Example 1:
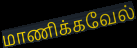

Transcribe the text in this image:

மாணிக்கவேல்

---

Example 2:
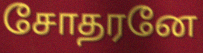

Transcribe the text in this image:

சோதரனே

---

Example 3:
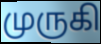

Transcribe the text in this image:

முருகி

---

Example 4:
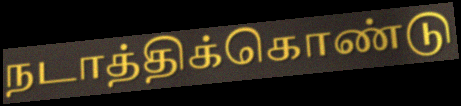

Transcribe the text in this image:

நடாத்திக்கொண்டு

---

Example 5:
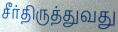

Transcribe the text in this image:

சீர்திருத்துவது